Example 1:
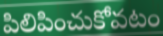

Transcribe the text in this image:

పిలిపించుకోవటం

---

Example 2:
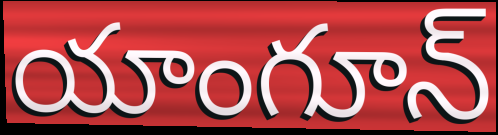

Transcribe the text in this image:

యాంగూన్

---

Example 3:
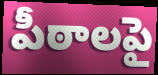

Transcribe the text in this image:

పీఠాలపై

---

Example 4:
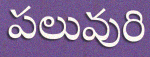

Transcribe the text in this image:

పలువురి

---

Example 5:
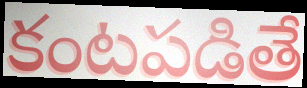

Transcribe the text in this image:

కంటపడితే